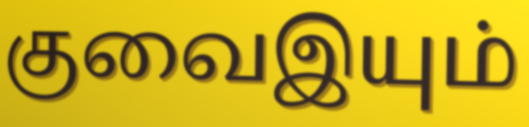
குவைஇயும்